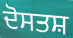
ਦੋਸਤਸ਼